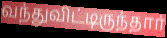
வந்துவிட்டிருந்தார்